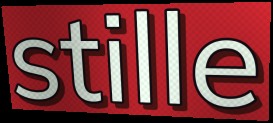
stille